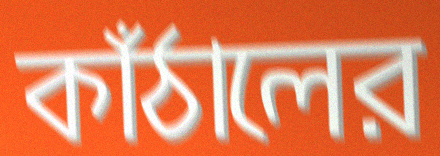
কাঁঠালের